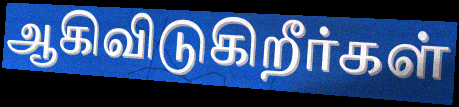
ஆகிவிடுகிறீர்கள்